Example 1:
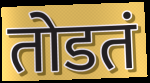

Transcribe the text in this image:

तोडतं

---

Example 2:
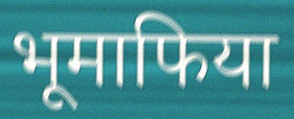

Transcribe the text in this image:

भूमाफिया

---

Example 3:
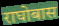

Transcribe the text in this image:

राघोबास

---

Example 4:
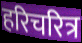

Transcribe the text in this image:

हरिचरित्र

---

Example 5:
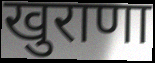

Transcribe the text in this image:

खुराणा